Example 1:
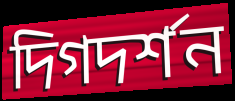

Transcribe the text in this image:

দিগদর্শন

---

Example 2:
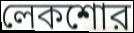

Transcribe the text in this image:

লেকশোর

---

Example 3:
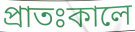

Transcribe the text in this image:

প্রাতঃকালে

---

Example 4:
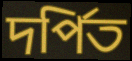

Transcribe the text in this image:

দর্পিত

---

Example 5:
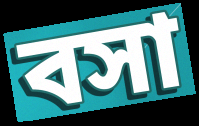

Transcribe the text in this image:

বসা